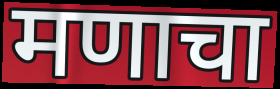
मणाचा